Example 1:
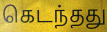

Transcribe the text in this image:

கெடந்தது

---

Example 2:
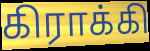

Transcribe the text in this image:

கிராக்கி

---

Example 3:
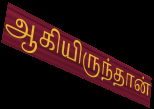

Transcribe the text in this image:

ஆகியிருந்தான்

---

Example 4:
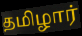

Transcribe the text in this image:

தமிழார்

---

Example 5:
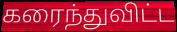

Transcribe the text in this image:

கரைந்துவிட்ட